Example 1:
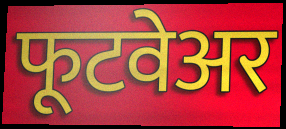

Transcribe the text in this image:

फूटवेअर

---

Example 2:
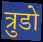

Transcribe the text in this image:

त्रुडो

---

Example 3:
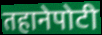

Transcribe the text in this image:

तहानेपोटी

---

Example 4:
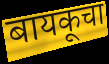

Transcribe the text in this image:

बायकूचा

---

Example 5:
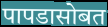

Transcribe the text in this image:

पापडासोबत